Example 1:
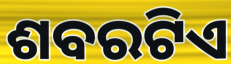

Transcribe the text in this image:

ଶବରଟିଏ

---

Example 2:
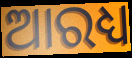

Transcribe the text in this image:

ଆରଧ୍ୟ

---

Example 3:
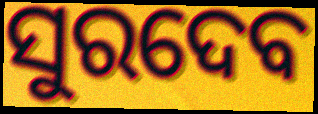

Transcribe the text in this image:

ସୁରଦେବ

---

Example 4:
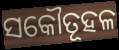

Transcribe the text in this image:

ସକୌତୂହଳ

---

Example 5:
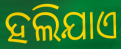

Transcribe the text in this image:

ହଲିଯାଏ